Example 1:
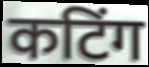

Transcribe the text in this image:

कटिंग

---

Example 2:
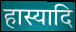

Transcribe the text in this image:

हास्यादि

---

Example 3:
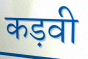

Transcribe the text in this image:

कड़वी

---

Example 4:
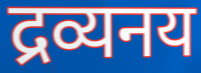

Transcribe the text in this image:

द्रव्यनय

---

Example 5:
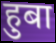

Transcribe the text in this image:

हुबा